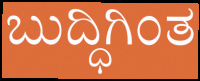
ಬುದ್ಧಿಗಿಂತ